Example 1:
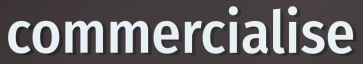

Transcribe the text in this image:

commercialise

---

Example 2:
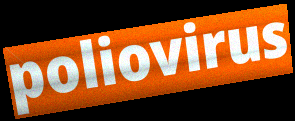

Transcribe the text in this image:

poliovirus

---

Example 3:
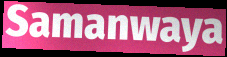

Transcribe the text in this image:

Samanwaya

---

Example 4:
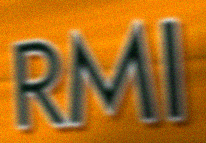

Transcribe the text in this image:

RMI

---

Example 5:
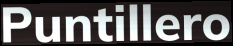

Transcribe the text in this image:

Puntillero